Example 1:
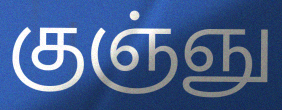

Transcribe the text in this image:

குஞ்ஞு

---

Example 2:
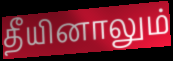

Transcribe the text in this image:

தீயினாலும்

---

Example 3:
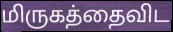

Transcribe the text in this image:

மிருகத்தைவிட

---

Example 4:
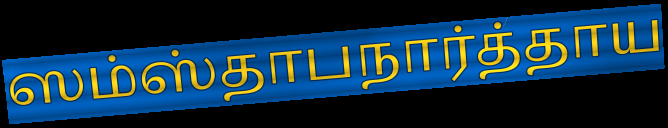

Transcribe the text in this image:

ஸம்ஸ்தாபநார்த்தாய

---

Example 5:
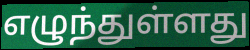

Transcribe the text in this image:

எழுந்துள்ளது